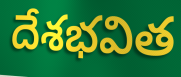
దేశభవిత